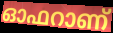
ഓഫറാണ്